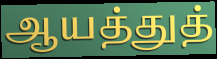
ஆயத்துத்